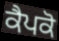
ਕੈਪਕੋ